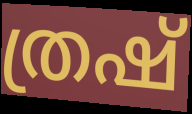
ത്രഷ്